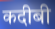
कदीबी